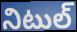
నిటుల్